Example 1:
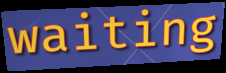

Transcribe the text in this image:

waiting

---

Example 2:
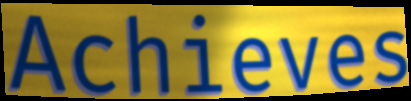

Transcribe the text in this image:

Achieves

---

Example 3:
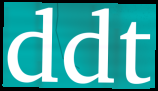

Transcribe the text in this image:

ddt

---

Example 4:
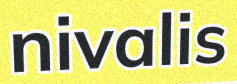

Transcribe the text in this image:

nivalis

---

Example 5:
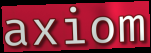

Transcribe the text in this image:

axiom